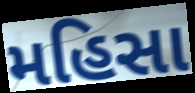
મહિસા